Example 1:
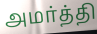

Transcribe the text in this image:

அமர்த்தி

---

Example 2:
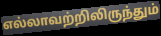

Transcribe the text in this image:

எல்லாவற்றிலிருந்தும்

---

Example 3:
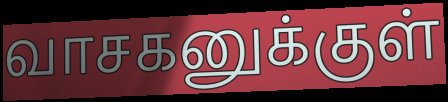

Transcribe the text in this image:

வாசகனுக்குள்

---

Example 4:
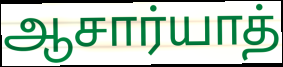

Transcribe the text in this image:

ஆசார்யாத்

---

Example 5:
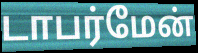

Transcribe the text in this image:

டாபர்மேன்